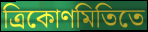
ত্রিকোণমিতিতে